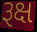
રૂક્ષ